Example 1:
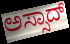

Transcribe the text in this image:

ಅಸ್ಸಾದ್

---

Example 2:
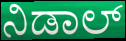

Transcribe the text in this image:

ನಿಡಾಲ್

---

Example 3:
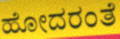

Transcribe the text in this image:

ಹೋದರಂತೆ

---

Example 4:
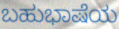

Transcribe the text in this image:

ಬಹುಭಾಷೆಯ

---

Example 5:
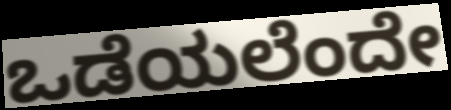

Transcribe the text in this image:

ಒಡೆಯಲೆಂದೇ